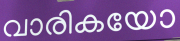
വാരികയോ